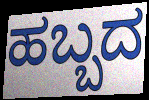
ಹಬ್ಬದ